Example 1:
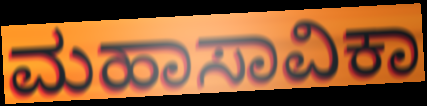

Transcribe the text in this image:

ಮಹಾಸಾವಿಕಾ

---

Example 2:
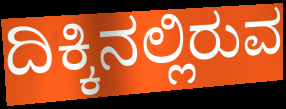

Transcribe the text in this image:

ದಿಕ್ಕಿನಲ್ಲಿರುವ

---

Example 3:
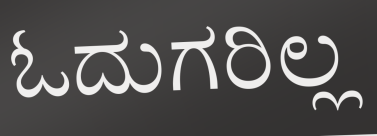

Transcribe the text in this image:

ಓದುಗರಿಲ್ಲ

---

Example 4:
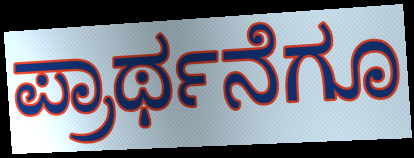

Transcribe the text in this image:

ಪ್ರಾರ್ಥನೆಗೂ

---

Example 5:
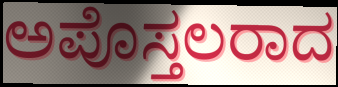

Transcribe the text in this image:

ಅಪೊಸ್ತಲರಾದ